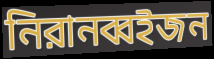
নিরানব্বইজন